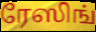
ரேஸிங்